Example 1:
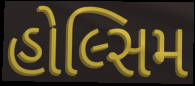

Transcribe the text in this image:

હોલ્સિમ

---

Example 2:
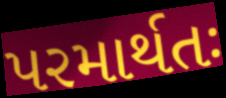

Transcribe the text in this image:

પરમાર્થતઃ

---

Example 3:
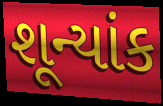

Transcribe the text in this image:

શૂન્યાંક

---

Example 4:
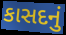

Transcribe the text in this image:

કાસદનું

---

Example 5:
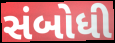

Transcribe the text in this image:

સંબોધી